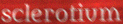
sclerotium